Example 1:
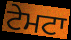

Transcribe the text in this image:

ਟੇਮਟਾ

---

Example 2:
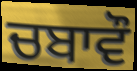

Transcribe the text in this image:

ਚਬਾਵੌ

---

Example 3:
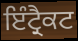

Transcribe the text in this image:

ਇੰਟ੍ਰੈਕਟ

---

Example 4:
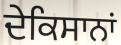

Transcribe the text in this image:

ਦੇਕਿਸਾਨਾਂ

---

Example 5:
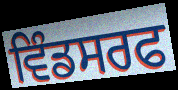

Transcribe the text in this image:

ਵਿੰਡਸਰਫ